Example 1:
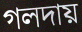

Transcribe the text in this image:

গলদায়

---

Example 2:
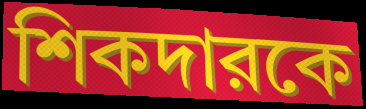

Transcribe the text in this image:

শিকদারকে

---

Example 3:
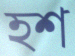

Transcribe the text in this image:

হশ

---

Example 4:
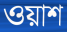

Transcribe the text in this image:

ওয়াশ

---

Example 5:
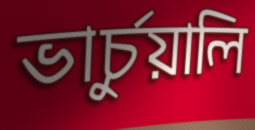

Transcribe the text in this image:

ভার্চুয়ালি